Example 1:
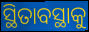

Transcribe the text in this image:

ସ୍ଥିତାବସ୍ଥାକୁ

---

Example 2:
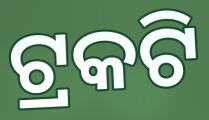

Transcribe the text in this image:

ଟ୍ରକଟି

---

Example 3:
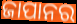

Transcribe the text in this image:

ଜାପାନର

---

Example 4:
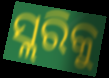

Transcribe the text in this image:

ସ୍ଲରିକୁ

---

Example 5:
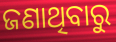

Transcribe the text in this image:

ଜଣାଥିବାରୁ